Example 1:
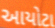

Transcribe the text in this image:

આયોટા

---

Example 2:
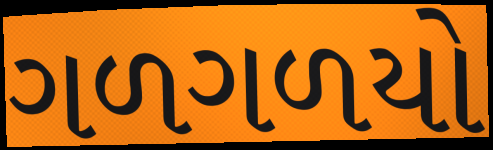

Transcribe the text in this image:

ગળગળયો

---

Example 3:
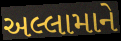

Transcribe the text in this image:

અલ્લામાને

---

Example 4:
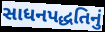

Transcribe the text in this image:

સાધનપદ્ધતિનું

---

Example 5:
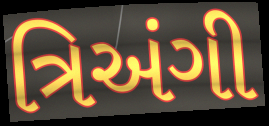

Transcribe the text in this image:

ત્રિઅંગી